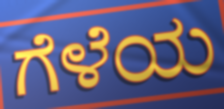
ಗೆಳೆಯ